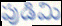
పుడిమి